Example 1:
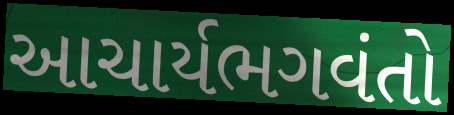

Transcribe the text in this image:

આચાર્યભગવંતો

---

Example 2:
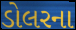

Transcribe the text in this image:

ડોલરના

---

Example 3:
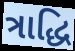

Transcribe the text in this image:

ત્રાદ્ધિ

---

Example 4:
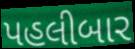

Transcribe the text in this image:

પહલીબાર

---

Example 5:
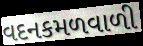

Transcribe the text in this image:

વદનકમળવાળી